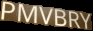
PMVBRY